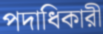
পদাধিকারী